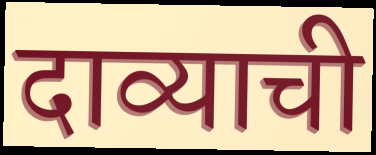
दाव्याची